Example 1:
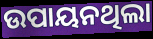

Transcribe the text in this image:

ଉପାୟନଥିଲା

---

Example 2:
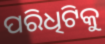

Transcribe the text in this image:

ପରିଧିଟିକୁ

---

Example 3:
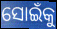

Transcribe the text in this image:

ସୋଇଁକୁ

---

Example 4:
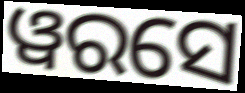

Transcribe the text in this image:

ୱରସେ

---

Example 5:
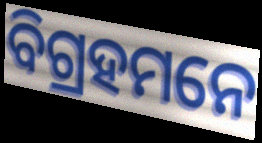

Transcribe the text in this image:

ବିଗ୍ରହମନେ